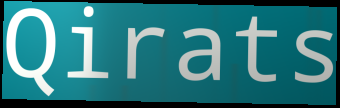
Qirats